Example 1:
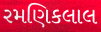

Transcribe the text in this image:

રમણિકલાલ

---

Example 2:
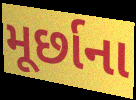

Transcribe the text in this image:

મૂર્છાના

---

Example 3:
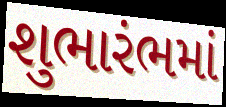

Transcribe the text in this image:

શુભારંભમાં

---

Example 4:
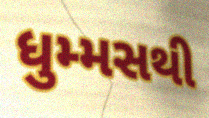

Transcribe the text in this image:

ધુમ્મસથી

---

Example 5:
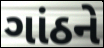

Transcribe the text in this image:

ગાંઠને